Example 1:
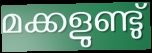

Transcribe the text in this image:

മക്കളുണ്ടു്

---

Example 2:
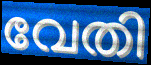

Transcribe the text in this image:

വേതി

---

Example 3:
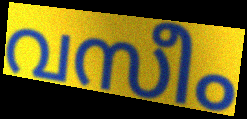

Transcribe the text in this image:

വസീം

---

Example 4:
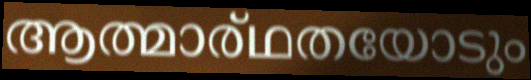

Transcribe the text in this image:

ആത്മാര്ഥതയോടും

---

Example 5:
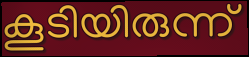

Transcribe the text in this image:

കൂടിയിരുന്ന്